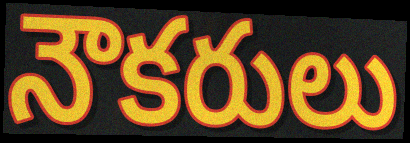
నౌకరులు